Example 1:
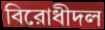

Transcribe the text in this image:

বিরোধীদল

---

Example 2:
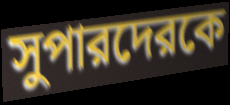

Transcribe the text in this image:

সুপারদেরকে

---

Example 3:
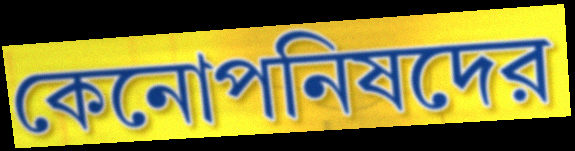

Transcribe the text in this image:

কেনোপনিষদের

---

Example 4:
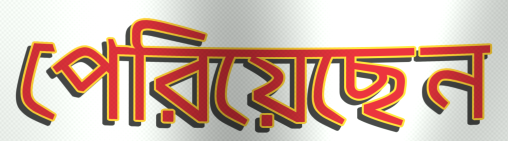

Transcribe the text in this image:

পেরিয়েছেন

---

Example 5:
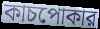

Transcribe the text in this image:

কাচপোকার